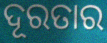
ଦୂରତାର